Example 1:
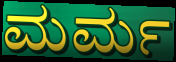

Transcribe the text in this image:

ಮರ್ಮ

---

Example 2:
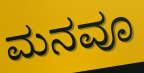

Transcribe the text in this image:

ಮನವೂ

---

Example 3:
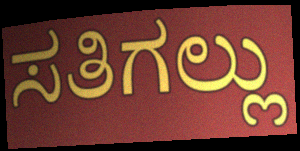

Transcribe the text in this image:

ಸತಿಗಲ್ಲು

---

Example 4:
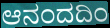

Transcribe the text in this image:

ಆನಂದದಿಂ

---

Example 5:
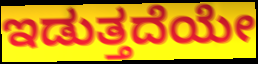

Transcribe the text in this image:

ಇಡುತ್ತದೆಯೇ